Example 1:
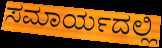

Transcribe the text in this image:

ಸಮಾರ್ಯದಲ್ಲಿ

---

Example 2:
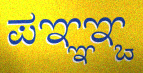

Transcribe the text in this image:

ಪಞ್ಞಞ್ಚ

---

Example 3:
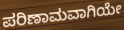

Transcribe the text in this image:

ಪರಿಣಾಮವಾಗಿಯೇ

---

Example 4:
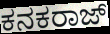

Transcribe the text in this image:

ಕನಕರಾಜ್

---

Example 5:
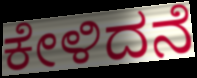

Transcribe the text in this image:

ಕೇಳಿದನೆ